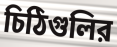
চিঠিগুলির